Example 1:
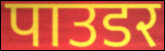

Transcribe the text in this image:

पाउडर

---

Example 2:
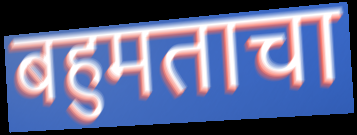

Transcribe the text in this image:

बहुमताचा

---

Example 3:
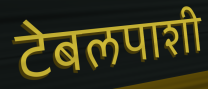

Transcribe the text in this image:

टेबलपाशी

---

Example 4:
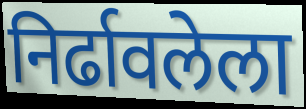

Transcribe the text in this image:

निर्ढावलेला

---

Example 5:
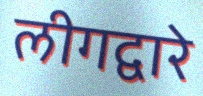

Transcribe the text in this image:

लीगद्वारे